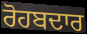
ਰੋਹਬਦਾਰ